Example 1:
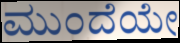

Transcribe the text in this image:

ಮುಂದೆಯೇ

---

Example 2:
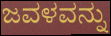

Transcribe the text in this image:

ಜವಳವನ್ನು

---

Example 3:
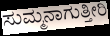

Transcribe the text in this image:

ಸುಮ್ಮನಾಗುತ್ತೀರಿ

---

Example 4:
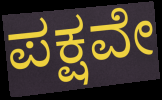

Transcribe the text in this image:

ಪಕ್ಷವೇ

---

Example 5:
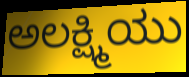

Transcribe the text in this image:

ಅಲಕ್ಷ್ಮಿಯು